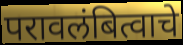
परावलंबित्वाचे